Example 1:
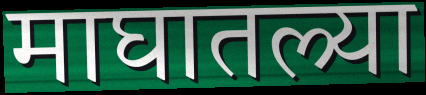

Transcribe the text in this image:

माघातल्या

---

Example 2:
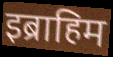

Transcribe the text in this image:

इब्राहिम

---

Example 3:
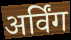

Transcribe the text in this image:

अर्विंग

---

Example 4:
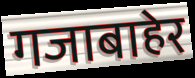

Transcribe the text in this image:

गजाबाहेर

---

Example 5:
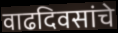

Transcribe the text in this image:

वाढदिवसांचे